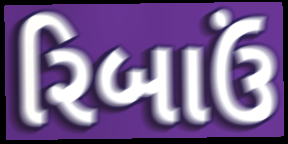
રિબાઉં